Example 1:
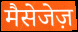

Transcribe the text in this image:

मैसेजेज़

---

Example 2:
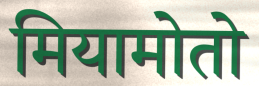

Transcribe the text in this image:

मियामोतो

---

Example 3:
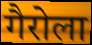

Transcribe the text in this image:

गैरोला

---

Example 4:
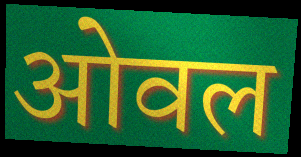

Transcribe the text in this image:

ओवल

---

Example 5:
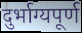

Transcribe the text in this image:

दुर्भाग्यपूर्ण